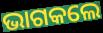
ଭାଗକଲେ